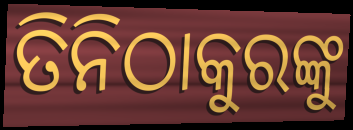
ତିନିଠାକୁରଙ୍କୁ